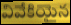
వివేకియైన